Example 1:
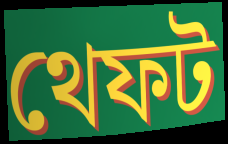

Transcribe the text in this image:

থেফট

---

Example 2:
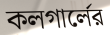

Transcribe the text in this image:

কলগার্লের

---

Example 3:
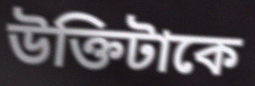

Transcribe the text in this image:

উক্তিটাকে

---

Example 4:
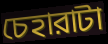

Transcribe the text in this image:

চেহারাটা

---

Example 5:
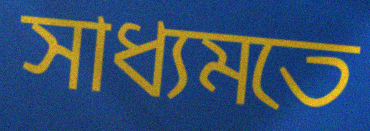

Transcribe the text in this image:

সাধ্যমতে